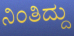
ನಿಂತಿದ್ದು